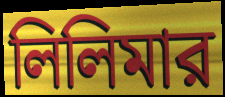
লিলিমার